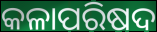
କଳାପରିଷଦ